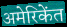
अमेरिकेंत